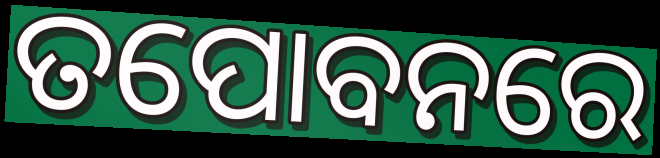
ତପୋବନରେ